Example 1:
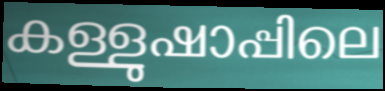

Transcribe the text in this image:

കള്ളുഷാപ്പിലെ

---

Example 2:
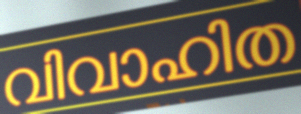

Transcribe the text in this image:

വിവാഹിത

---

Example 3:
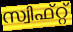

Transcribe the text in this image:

സ്വിഫ്റ്റ്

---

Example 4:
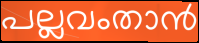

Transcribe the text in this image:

പല്ലവംതാൻ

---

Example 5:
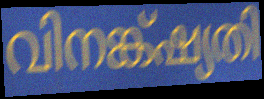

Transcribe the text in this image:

വിനങ്ക്ഷ്യതി